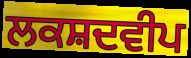
ਲਕਸ਼ਦਵੀਪ